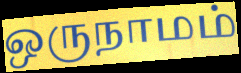
ஒருநாமம்